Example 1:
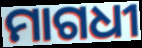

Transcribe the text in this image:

ମାଗଧୀ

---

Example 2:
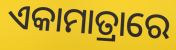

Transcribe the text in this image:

ଏକାମାତ୍ରାରେ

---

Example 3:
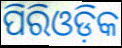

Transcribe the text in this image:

ପିରିଓଡ଼ିକ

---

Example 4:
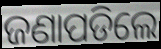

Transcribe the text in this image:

ଜଣାପଡିଲେ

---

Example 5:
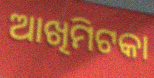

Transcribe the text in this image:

ଆଖିମିଟକା